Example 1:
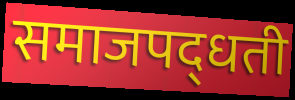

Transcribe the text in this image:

समाजपद्धती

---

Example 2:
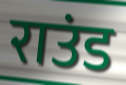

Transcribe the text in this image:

राउंड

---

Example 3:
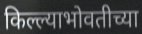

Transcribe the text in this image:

किल्ल्याभोवतीच्या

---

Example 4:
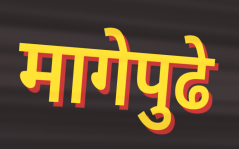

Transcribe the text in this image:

मागेपुढे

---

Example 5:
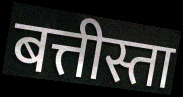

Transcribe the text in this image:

बत्तीस्ता